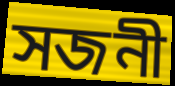
সজনী